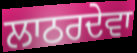
ਲਾਠਰਦੇਵਾ